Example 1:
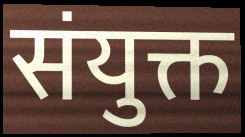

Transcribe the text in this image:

संयुक्त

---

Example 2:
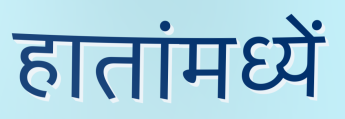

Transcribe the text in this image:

हातांमध्यें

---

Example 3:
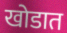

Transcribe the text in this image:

खोडात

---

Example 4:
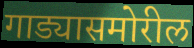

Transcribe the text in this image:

गाड्यासमोरील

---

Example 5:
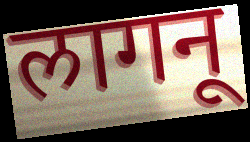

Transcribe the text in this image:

लागनू